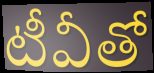
టీవీతో